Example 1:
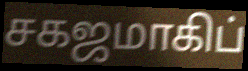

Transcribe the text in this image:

சகஜமாகிப்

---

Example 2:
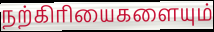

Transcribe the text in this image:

நற்கிரியைகளையும்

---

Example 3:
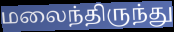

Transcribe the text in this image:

மலைந்திருந்து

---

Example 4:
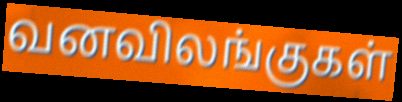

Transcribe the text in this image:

வனவிலங்குகள்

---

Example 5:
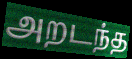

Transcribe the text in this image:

அறடந்த